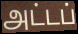
அட்டப்